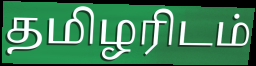
தமிழரிடம்